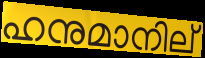
ഹനുമാനില്